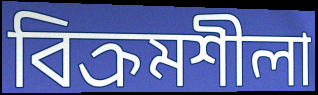
বিক্রমশীলা